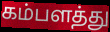
கம்பளத்து